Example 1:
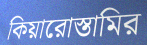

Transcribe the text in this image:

কিয়ারোস্তামির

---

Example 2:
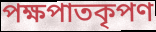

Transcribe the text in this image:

পক্ষপাতকৃপণ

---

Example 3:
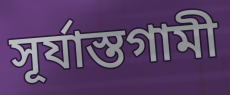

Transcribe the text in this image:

সূর্যাস্তগামী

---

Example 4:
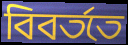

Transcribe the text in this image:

বিবর্ততে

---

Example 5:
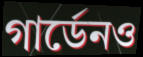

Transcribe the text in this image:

গার্ডেনও